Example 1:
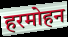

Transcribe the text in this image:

हरमोहन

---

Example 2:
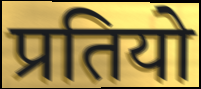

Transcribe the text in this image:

प्रतियो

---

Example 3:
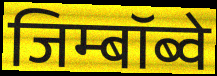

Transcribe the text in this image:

जिम्बॉब्वे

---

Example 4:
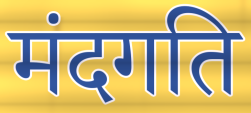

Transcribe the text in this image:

मंदगति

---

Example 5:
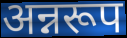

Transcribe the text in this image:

अन्नरूप